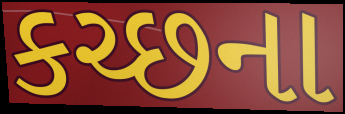
કચ્છના